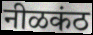
नीळकंठ